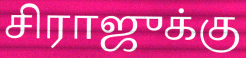
சிராஜுக்கு